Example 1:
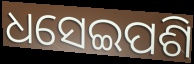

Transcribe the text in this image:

ଧସେଇପଶି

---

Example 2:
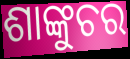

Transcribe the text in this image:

ଶାଙ୍କୁଚର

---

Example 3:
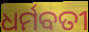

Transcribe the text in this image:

ଧର୍ମବତୀ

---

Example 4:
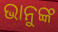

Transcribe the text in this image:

ଭାନୁଙ୍କ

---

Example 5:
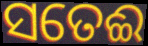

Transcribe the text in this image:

ସତେଈ